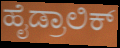
ಹೈಡ್ರಾಲಿಕ್